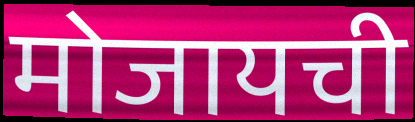
मोजायची